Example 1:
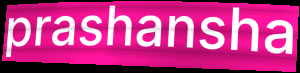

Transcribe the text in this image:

prashansha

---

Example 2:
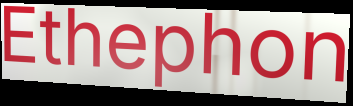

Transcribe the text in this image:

Ethephon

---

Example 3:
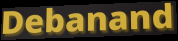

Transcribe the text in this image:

Debanand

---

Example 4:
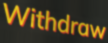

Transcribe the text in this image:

Withdraw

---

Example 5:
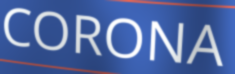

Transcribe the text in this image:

CORONA